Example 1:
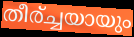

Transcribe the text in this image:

തീര്ച്ചയായും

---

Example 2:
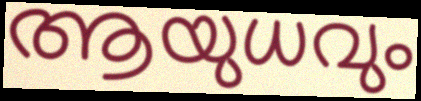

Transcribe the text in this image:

ആയുധവും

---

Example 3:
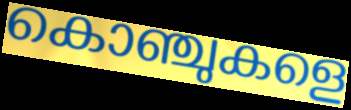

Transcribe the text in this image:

കൊഞ്ചുകളെ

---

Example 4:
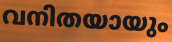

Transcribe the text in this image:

വനിതയായും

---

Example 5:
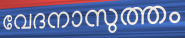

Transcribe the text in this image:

വേദനാസുത്തം